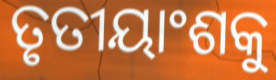
ତୃତୀୟାଂଶକୁ